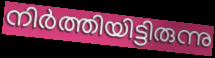
നിർത്തിയിട്ടിരുന്നു